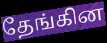
தேங்கின